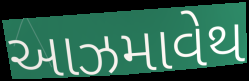
આઝમાવેથ